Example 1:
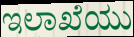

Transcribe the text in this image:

ಇಲಾಖೆಯು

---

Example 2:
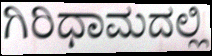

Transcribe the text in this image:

ಗಿರಿಧಾಮದಲ್ಲಿ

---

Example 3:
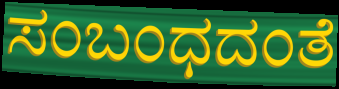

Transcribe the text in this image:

ಸಂಬಂಧದಂತೆ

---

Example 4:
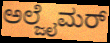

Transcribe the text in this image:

ಅಲ್ಜೈಮರ್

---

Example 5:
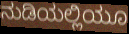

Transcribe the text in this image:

ನುಡಿಯಲ್ಲಿಯೂ